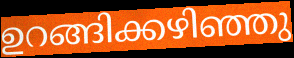
ഉറങ്ങിക്കഴിഞ്ഞു